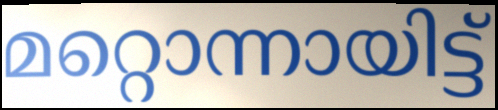
മറ്റൊന്നായിട്ട്